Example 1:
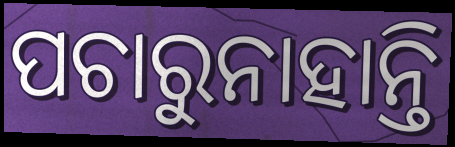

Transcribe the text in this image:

ପଚାରୁନାହାନ୍ତି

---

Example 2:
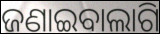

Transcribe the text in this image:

ଜଣାଇବାଲାଗି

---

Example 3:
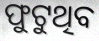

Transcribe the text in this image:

ଫୁଟୁଥିବ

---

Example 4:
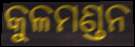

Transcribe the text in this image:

କୁଳମଣ୍ଡନ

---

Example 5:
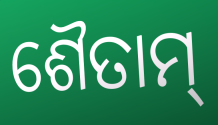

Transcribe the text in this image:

ଶୈତାମ୍